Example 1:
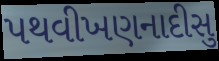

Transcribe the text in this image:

પથવીખણનાદીસુ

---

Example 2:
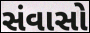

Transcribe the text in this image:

સંવાસો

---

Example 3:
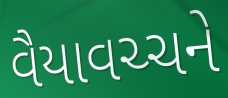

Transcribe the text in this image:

વૈયાવચ્ચને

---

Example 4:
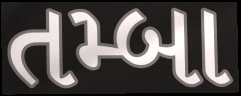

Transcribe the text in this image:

તમ્બા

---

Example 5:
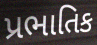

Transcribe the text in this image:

પ્રભાતિક